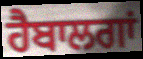
ਹੈਬਾਲਗਾਂ